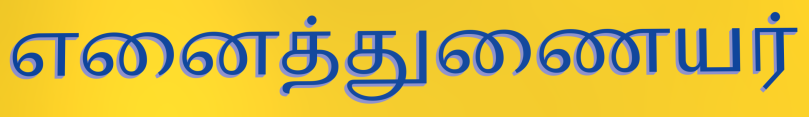
எனைத்துணையர்